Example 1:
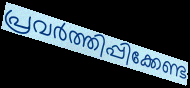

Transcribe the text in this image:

പ്രവർത്തിപ്പിക്കേണ്ട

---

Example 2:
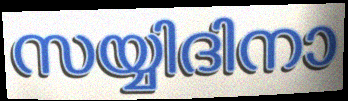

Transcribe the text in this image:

സയ്യിദിനാ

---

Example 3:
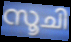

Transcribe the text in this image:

സൂചി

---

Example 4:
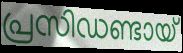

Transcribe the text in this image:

പ്രസിഡണ്ടായ്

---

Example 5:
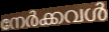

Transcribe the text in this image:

നേർക്കവൾ